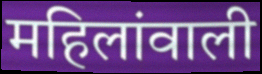
महिलांवाली